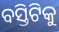
ବସ୍ତିଟିକୁ